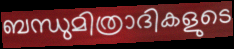
ബന്ധുമിത്രാദികളുടെ